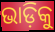
ଭାଡ଼ିକୁ